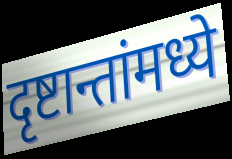
दृष्टान्तांमध्ये